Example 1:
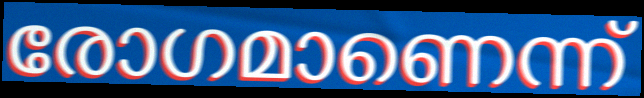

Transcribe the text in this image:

രോഗമാണെന്ന്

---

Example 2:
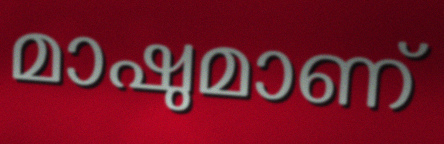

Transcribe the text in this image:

മാഷുമാണ്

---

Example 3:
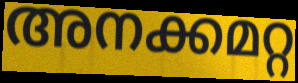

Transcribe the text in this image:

അനക്കമറ്റ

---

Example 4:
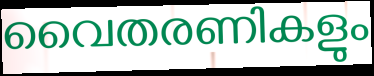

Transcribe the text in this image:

വൈതരണികളും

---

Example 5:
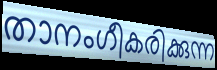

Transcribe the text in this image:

താനംഗീകരിക്കുന്ന